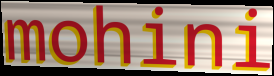
mohini